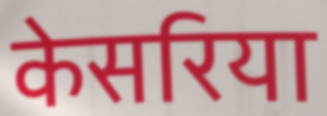
केसरिया